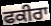
ਫਕੀਰਾ